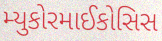
મ્યુકોરમાઈકોસિસ